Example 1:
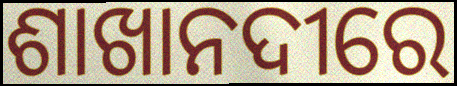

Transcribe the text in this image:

ଶାଖାନଦୀରେ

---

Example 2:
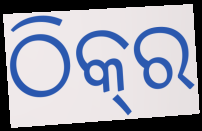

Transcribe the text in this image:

ଠିକ୍‍ର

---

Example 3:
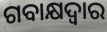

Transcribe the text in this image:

ଗବାକ୍ଷଦ୍ୱାର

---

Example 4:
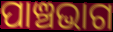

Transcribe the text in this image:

ପାଞ୍ଚଭାଗ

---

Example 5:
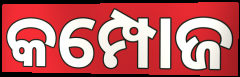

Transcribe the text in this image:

କମ୍ପୋଜ